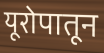
यूरोपातून